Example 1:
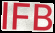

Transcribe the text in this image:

IFB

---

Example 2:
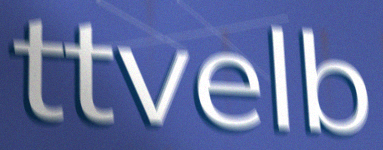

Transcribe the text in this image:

ttvelb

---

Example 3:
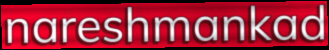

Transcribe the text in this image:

nareshmankad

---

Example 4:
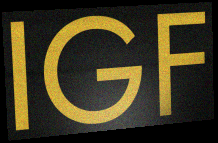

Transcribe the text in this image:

IGF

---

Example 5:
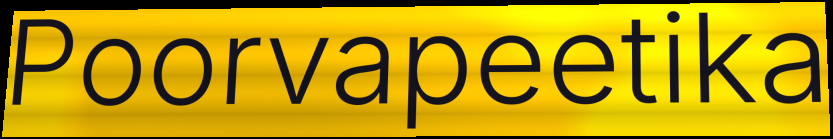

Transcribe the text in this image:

Poorvapeetika